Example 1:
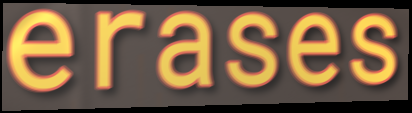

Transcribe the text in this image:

erases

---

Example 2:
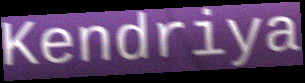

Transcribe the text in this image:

Kendriya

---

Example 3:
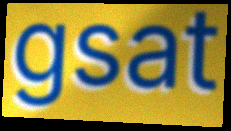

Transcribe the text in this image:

gsat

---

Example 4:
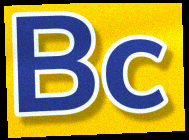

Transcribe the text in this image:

Bc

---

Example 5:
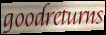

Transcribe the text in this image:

goodreturns